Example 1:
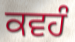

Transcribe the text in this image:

ਕਵਹੰ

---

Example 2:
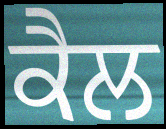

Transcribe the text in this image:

ਕੈਲ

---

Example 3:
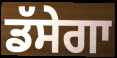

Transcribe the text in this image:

ਡੱਸੇਗਾ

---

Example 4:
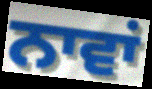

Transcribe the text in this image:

ਨਾਵਾਂ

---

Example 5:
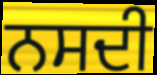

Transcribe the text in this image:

ਨਸਦੀ